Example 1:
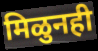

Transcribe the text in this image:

मिळुनही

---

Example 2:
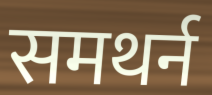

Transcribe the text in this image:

समथर्न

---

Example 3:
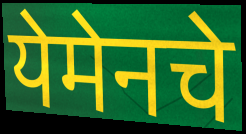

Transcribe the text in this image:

येमेनचे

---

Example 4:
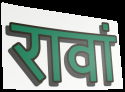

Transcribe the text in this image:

रावां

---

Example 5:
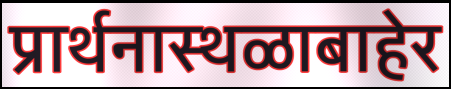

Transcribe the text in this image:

प्रार्थनास्थळाबाहेर